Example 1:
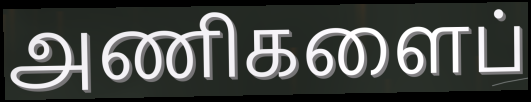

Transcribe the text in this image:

அணிகளைப்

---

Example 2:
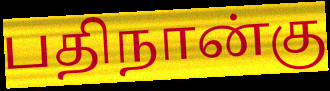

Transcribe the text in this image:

பதிநான்கு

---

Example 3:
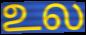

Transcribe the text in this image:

உல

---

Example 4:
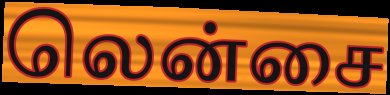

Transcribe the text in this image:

லென்சை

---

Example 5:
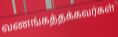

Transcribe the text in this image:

வணங்கத்தக்கவர்கள்